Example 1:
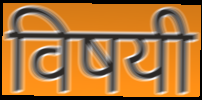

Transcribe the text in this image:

विषयी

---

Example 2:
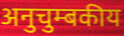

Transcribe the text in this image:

अनुचुम्बकीय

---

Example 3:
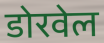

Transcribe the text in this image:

डोरवेल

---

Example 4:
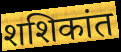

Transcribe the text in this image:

शशिकांत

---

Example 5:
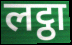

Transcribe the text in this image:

लट्ठा